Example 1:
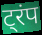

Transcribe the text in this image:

ट्रंप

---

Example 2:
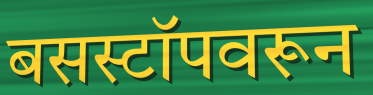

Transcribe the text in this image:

बसस्टॉपवरून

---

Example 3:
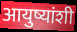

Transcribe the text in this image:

आयुष्यांशी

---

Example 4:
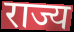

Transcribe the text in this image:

राज्य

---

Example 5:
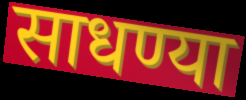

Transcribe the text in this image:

साधण्या